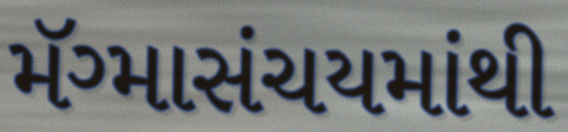
મૅગ્માસંચયમાંથી